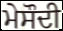
ਮੇਸੌਦੀ